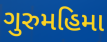
ગુરુમહિમા